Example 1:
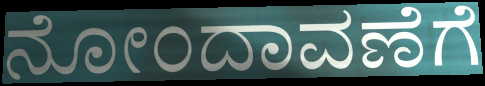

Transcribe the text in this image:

ನೋಂದಾವಣೆಗೆ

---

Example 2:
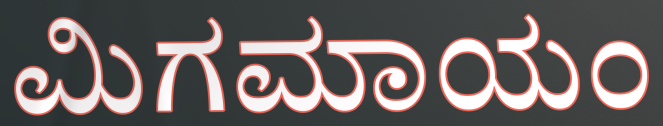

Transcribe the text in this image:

ಮಿಗಮಾಯಂ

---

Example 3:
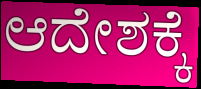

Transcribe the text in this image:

ಆದೇಶಕ್ಕೆ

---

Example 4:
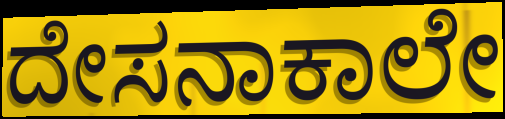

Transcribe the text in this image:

ದೇಸನಾಕಾಲೇ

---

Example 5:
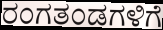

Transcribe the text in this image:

ರಂಗತಂಡಗಳಿಗೆ